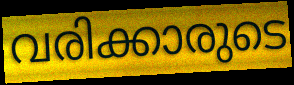
വരിക്കാരുടെ